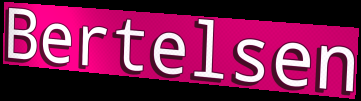
Bertelsen